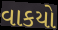
વાકયો